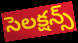
సెలక్షన్స్